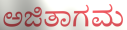
ಅಜಿತಾಗಮ